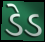
ડેડ